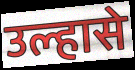
उल्हासे